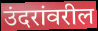
उंदरांवरील